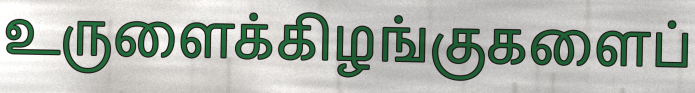
உருளைக்கிழங்குகளைப்